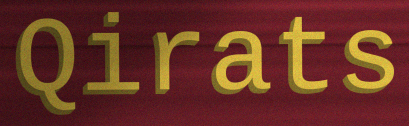
Qirats